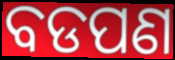
ବଡପଣ